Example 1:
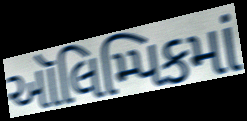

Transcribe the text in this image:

ઑલિમ્પિકમાં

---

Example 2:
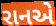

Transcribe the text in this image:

રાનએ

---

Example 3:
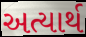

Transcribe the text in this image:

અત્યાર્થ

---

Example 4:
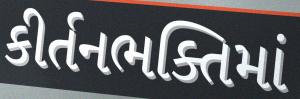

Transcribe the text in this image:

કીર્તનભક્તિમાં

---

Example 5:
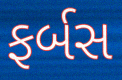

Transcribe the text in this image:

ફર્બસ